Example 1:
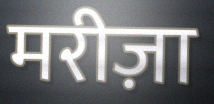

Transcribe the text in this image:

मरीज़ा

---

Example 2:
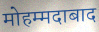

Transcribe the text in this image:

मोहम्मदाबाद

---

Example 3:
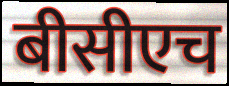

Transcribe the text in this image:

बीसीएच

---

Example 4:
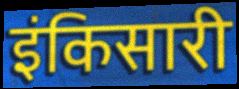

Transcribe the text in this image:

इंकिसारी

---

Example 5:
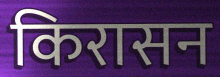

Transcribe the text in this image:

किरासन